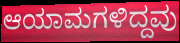
ಆಯಾಮಗಳಿದ್ದವು